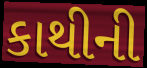
કાથીની